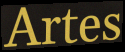
Artes